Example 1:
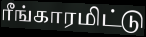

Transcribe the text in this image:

ரீங்காரமிட்டு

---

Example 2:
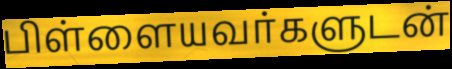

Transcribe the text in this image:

பிள்ளையவர்களுடன்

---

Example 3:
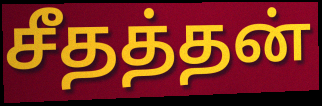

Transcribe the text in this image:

சீதத்தன்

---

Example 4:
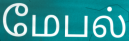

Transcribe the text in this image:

மேபல்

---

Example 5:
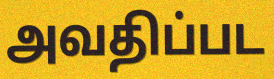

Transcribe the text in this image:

அவதிப்பட